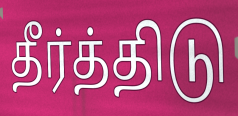
தீர்த்திடு